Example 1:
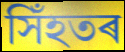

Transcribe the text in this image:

সিঁহতৰ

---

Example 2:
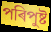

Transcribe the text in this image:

পৰিপুষ্ট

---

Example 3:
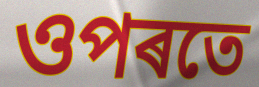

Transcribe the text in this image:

ওপৰতে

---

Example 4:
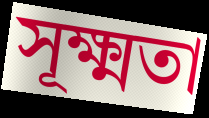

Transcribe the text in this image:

সূক্ষ্মতা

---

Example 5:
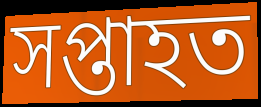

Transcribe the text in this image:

সপ্তাহত